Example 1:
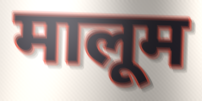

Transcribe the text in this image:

मालूम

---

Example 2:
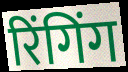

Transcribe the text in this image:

रिंगिंग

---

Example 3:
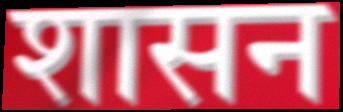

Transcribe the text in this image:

शासन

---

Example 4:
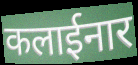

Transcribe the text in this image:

कलाईनार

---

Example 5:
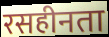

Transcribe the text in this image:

रसहीनता